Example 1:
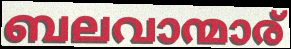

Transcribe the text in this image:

ബലവാന്മാര്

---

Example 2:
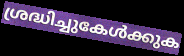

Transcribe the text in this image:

ശ്രദ്ധിച്ചുകേൾക്കുക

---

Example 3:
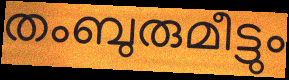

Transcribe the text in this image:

തംബുരുമീട്ടും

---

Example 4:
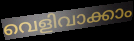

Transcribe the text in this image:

വെളിവാക്കാം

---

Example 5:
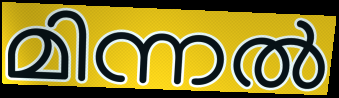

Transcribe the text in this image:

മിന്നൽ